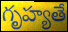
గృహ్యతే